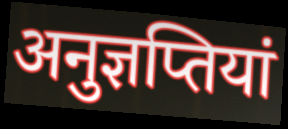
अनुज्ञप्तियां